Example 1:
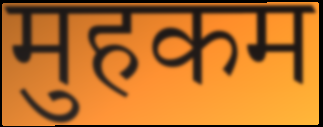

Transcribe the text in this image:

मुहकम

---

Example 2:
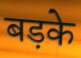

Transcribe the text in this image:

बड़के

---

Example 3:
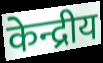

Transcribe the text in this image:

केन्द्रीय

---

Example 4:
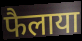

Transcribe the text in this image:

फैलाया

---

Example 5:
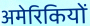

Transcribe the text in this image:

अमेरिकियों